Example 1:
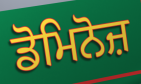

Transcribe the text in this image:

ਡੋਮਿਨੋਜ਼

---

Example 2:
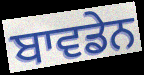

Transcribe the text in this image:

ਬਾਵਡੇਨ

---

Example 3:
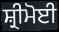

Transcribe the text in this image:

ਸ਼੍ਰੀਮੋਈ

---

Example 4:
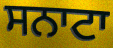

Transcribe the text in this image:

ਸਨਾਟਾ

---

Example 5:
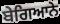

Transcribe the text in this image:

ਬੇਗਿਆਨੇ